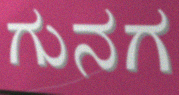
ಗುನಗ